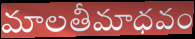
మాలతీమాధవం